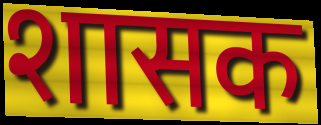
शासक